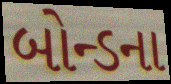
બોન્ડના